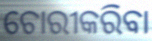
ଚୋରୀକରିବା